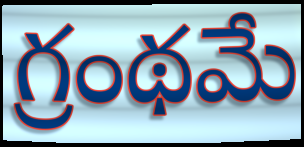
గ్రంథమే